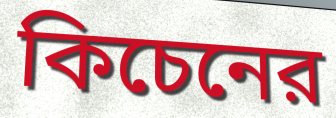
কিচেনের